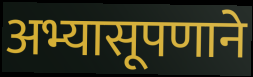
अभ्यासूपणाने